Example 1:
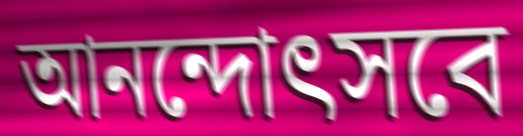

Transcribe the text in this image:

আনন্দোৎসবে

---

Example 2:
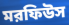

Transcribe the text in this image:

মরফিউস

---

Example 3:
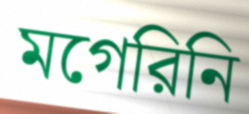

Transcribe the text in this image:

মগেরিনি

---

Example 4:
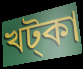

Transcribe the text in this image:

খট্কা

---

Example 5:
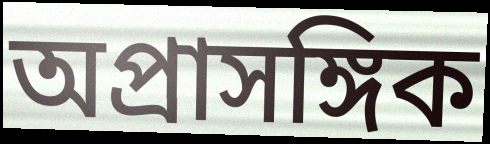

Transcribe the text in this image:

অপ্রাসঙ্গিক